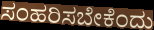
ಸಂಹರಿಸಬೇಕೆಂದು